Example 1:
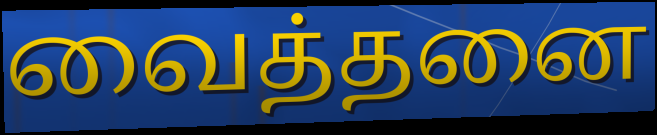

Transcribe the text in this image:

வைத்தனை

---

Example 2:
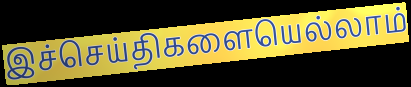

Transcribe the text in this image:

இச்செய்திகளையெல்லாம்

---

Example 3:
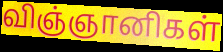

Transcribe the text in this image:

விஞ்ஞானிகள்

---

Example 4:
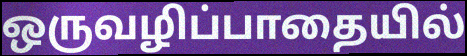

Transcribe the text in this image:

ஒருவழிப்பாதையில்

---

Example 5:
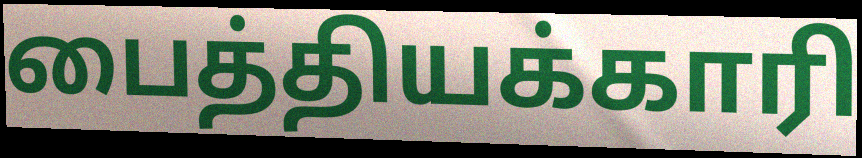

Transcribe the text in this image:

பைத்தியக்காரி